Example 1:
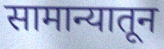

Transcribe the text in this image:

सामान्यातून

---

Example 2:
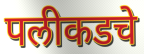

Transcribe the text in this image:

पलीकडचे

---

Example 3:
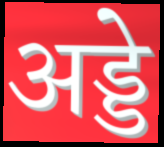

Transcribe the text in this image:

अड्डे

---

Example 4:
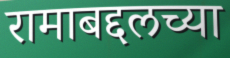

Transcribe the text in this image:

रामाबद्दलच्या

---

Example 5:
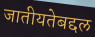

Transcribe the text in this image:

जातीयतेबद्दल